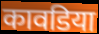
कावडिया